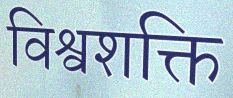
विश्वशक्ति